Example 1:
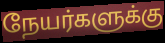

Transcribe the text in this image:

நேயர்களுக்கு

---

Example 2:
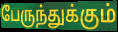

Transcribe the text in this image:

பேருந்துக்கும்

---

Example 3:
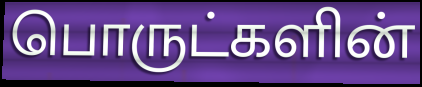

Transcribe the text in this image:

பொருட்களின்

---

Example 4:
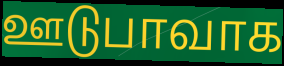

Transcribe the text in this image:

ஊடுபாவாக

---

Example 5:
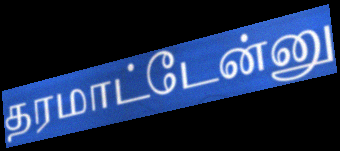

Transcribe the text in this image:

தரமாட்டேன்னு